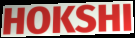
HOKSHI